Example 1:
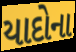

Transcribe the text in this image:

યાદોના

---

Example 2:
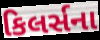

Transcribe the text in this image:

કિલર્સના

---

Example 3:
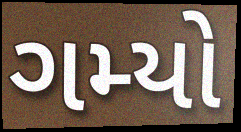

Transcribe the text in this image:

ગમ્યો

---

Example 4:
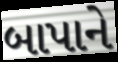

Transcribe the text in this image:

બાપાને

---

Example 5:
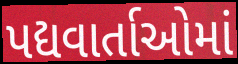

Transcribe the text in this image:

પદ્યવાર્તાઓમાં